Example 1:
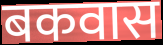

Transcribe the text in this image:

बकवास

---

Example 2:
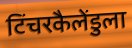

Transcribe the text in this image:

टिंचरकैलेंडुला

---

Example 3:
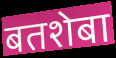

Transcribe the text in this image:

बतशेबा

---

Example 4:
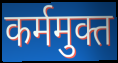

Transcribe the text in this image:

कर्ममुक्त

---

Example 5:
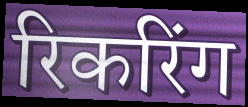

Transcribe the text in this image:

रिकरिंग